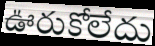
ఊరుకోలేదు